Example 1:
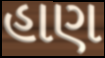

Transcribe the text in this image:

હાણ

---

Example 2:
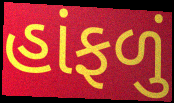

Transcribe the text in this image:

હાંફળું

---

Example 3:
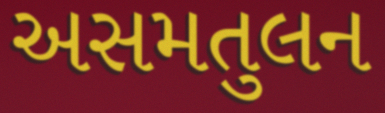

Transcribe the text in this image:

અસમતુલન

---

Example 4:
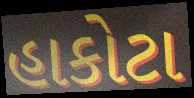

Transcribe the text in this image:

હાકોટા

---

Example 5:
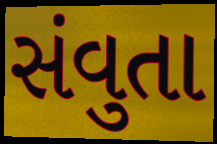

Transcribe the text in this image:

સંવુતા